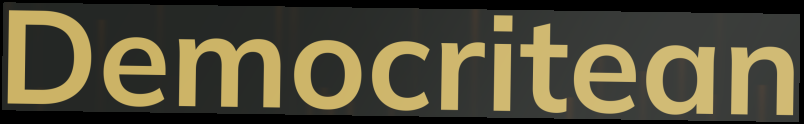
Democritean